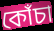
কোঁচা